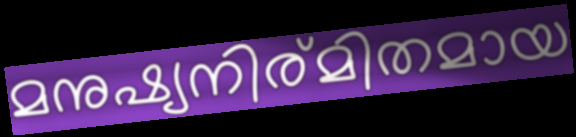
മനുഷ്യനിര്മിതമായ